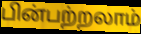
பின்பற்றலாம்